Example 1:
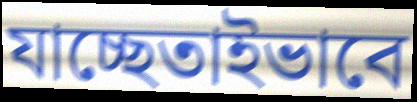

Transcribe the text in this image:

যাচ্ছেতাইভাবে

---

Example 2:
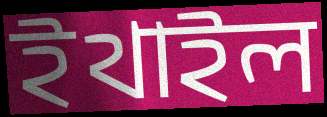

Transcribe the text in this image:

ইথাইল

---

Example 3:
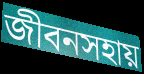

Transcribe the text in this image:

জীবনসহায়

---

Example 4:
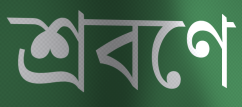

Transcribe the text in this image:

শ্রবণে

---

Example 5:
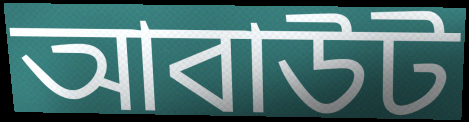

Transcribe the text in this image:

আবাউট